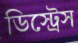
ডিস্ট্রেস